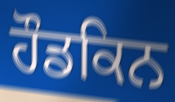
ਹੌਡਕਿਨ